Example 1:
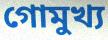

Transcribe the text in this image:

গোমুখ্য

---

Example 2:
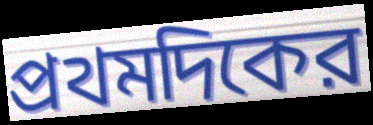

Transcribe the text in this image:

প্রথমদিকের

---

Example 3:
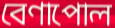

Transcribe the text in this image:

বেণাপোল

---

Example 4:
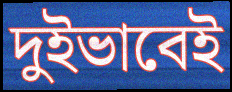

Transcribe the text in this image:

দুইভাবেই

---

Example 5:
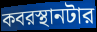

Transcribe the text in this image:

কবরস্থানটার